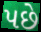
પછે